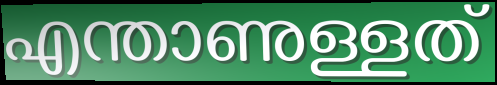
എന്താണുള്ളത്